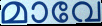
മാവേ